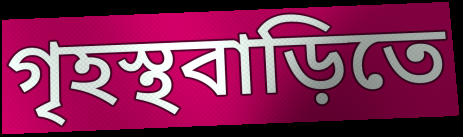
গৃহস্থবাড়িতে